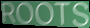
ROOTS